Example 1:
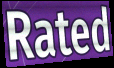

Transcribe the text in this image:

Rated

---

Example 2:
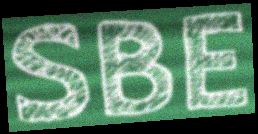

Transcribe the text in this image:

SBE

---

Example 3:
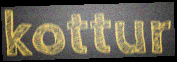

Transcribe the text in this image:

kottur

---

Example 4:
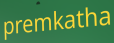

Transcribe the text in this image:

premkatha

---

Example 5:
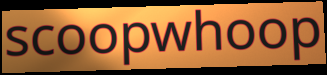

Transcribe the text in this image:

scoopwhoop